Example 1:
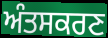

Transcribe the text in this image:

ਅੰਤਸਕਰਣ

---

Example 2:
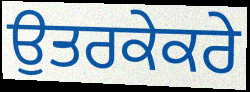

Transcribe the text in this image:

ਉਤਰਕੇਕਰੇ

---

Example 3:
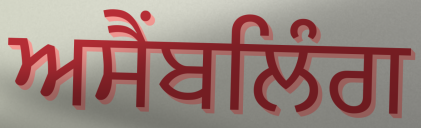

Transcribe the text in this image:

ਅਸੈਂਬਲਿੰਗ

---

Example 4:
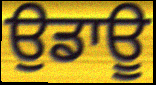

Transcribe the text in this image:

ਉਡਾਊ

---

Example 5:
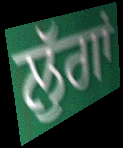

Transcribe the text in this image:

ਲੁੱਗਾਂ